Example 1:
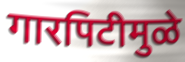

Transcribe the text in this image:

गारपिटीमुळे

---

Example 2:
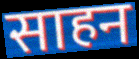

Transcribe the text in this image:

साहन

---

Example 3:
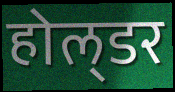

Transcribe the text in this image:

होल्डर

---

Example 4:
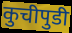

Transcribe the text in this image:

कुचीपुडी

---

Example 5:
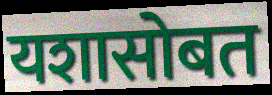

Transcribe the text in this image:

यशासोबत